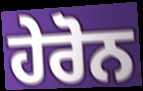
ਹੇਰੋਨ